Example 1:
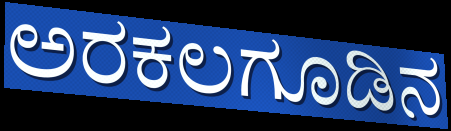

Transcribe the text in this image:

ಅರಕಲಗೂಡಿನ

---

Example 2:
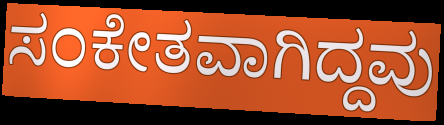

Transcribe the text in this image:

ಸಂಕೇತವಾಗಿದ್ದವು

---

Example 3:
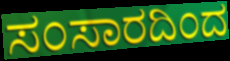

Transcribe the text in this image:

ಸಂಸಾರದಿಂದ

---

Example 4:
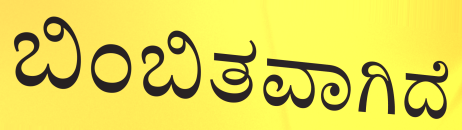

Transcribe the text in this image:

ಬಿಂಬಿತವಾಗಿದೆ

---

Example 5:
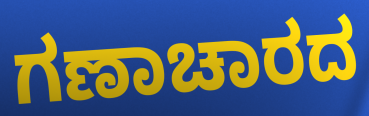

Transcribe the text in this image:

ಗಣಾಚಾರದ